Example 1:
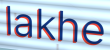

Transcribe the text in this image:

lakhe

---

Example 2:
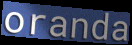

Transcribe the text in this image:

oranda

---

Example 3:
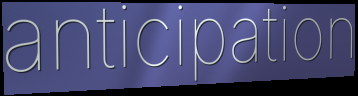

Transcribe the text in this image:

anticipation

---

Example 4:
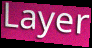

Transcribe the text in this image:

Layer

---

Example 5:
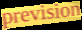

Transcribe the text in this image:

prevision